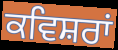
ਕਵਿਸ਼ਰਾਂ